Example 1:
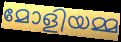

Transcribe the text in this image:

മോളിയമ്മ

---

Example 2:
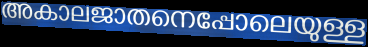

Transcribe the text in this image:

അകാലജാതനെപ്പോലെയുള്ള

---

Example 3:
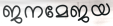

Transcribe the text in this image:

ജനമേജയ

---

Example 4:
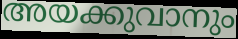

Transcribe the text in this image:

അയക്കുവാനും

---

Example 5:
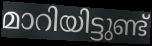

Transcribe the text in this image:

മാറിയിട്ടുണ്ട്